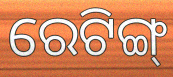
ରେଟିଙ୍ଗ୍